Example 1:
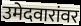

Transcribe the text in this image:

उमेदवारांवर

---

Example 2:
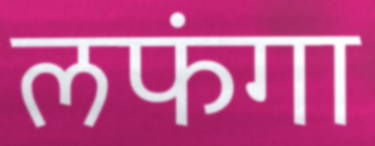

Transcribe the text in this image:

लफंगा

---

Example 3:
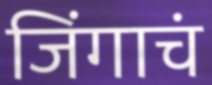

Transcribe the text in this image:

जिंगाचं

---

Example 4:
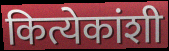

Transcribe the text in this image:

कित्येकांशी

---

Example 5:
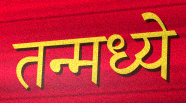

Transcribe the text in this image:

तन्मध्ये